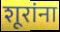
शूरांना